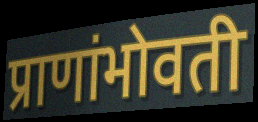
प्राणांभोवती